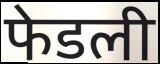
फेडली